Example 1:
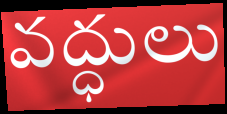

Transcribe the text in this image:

వద్ధులు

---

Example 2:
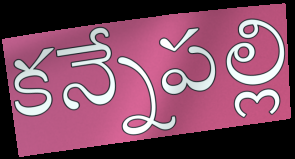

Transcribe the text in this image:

కన్నేపల్లి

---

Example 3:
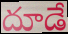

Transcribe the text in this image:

దూడే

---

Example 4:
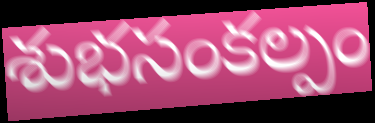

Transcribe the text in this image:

శుభసంకల్పం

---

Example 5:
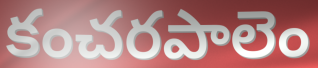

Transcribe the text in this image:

కంచరపాలెం